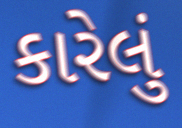
કારેલું